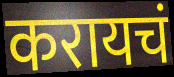
करायचं